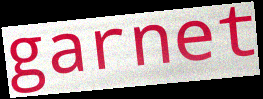
garnet